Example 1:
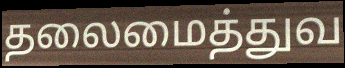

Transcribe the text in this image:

தலைமைத்துவ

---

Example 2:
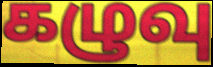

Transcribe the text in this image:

கழுவு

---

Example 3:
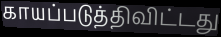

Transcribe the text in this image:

காயப்படுத்திவிட்டது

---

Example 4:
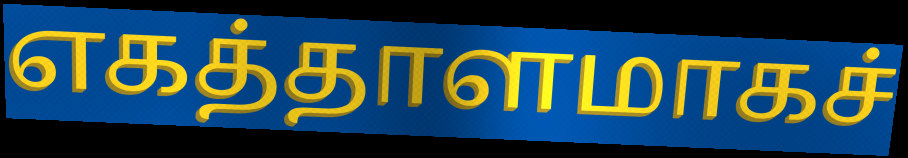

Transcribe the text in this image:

எகத்தாளமாகச்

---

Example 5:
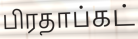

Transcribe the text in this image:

பிரதாப்கட்